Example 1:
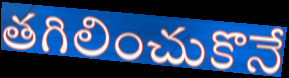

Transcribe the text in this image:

తగిలించుకొనే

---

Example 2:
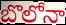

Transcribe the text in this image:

బొలోనా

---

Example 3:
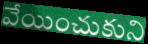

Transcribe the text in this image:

వేయించుకుని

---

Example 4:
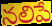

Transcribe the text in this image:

నలిపే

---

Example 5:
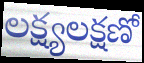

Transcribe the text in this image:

లక్ష్యలక్షణో